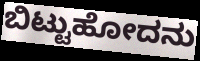
ಬಿಟ್ಟುಹೋದನು